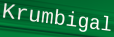
Krumbigal